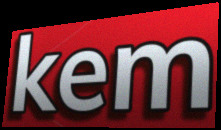
kem